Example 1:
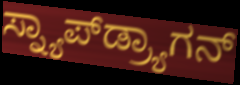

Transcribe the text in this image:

ಸ್ನ್ಯಾಪ್‌ಡ್ರ್ಯಾಗನ್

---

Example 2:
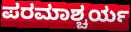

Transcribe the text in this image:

ಪರಮಾಶ್ಚರ್ಯ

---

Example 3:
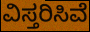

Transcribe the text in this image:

ವಿಸ್ತರಿಸಿವೆ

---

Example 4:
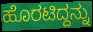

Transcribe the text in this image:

ಹೊರಟಿದ್ದನ್ನು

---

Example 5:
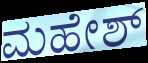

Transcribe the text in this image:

ಮಹೇಶ್